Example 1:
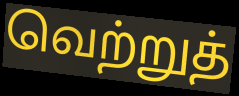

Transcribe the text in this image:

வெற்றுத்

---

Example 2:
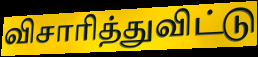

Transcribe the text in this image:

விசாரித்துவிட்டு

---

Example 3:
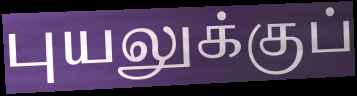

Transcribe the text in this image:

புயலுக்குப்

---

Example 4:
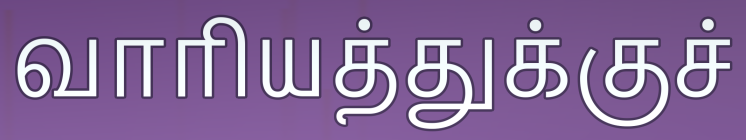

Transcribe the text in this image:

வாரியத்துக்குச்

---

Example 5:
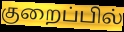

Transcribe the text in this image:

குறைப்பில்